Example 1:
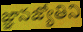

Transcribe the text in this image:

జ్ఞానజ్యోతిని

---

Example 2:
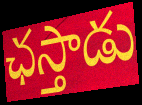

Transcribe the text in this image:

ఛస్తాడు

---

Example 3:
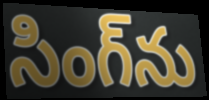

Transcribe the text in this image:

సింగ్‌ను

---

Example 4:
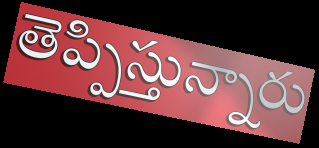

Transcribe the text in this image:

తెప్పిస్తున్నారు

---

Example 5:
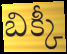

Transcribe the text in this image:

బిక్కీ